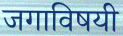
जगाविषयी